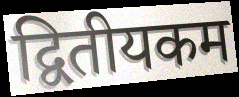
द्वितीयकम